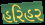
હરિહર